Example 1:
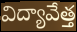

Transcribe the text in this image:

విద్యావేత్త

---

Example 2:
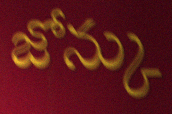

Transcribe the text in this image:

జోన్కు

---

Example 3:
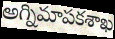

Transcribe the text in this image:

అగ్నిమాపకశాఖ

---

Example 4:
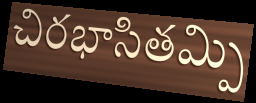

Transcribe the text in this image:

చిరభాసితమ్పి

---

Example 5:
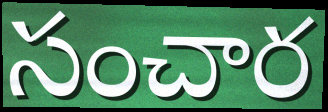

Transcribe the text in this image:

సంచార